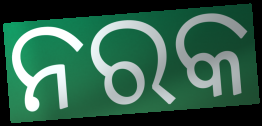
ନରକ